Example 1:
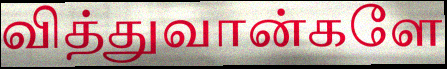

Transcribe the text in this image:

வித்துவான்களே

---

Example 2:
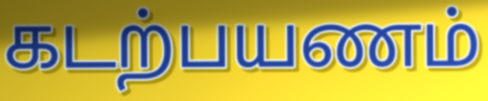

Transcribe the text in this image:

கடற்பயணம்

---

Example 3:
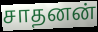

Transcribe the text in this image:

சாதனன்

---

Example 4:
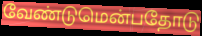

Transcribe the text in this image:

வேண்டுமென்பதோடு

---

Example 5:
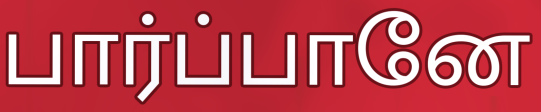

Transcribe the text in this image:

பார்ப்பானே